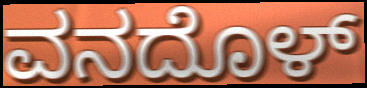
ವನದೊಳ್